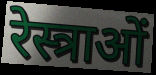
रेस्त्राओं